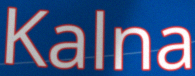
Kalna